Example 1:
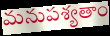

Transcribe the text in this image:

మనుపశ్యతాం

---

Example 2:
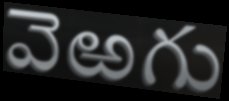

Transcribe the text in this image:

వెఱగు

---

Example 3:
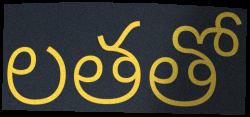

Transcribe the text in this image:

లతతో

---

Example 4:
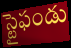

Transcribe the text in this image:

స్టైఫండు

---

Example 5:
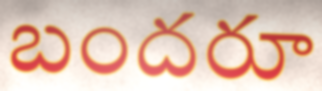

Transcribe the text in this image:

బందరూ